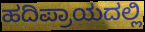
ಹದಿಪ್ರಾಯದಲ್ಲಿ